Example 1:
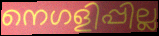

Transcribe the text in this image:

നെഗളിപ്പില്ല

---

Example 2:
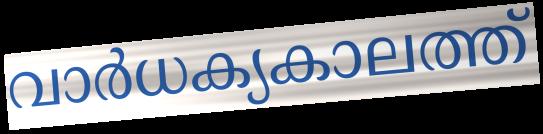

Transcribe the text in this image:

വാർധക്യകാലത്ത്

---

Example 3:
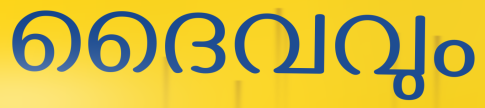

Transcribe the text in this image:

ദൈവവും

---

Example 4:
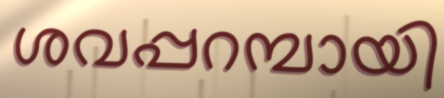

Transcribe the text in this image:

ശവപ്പറമ്പായി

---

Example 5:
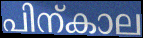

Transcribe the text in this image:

പിന്കാല